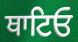
ਥਾਟਿਓ